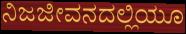
ನಿಜಜೀವನದಲ್ಲಿಯೂ